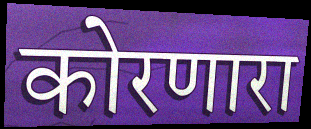
कोरणारा